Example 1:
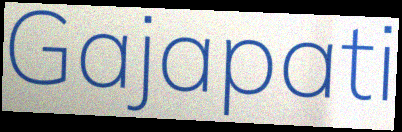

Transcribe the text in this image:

Gajapati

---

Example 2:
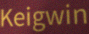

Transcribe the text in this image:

Keigwin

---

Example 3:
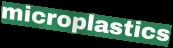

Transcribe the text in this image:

microplastics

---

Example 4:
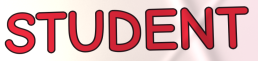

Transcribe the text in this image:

STUDENT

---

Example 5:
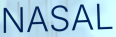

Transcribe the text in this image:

NASAL